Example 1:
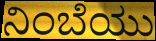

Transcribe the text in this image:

ನಿಂಬೆಯು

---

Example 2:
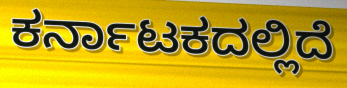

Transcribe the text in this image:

ಕರ್ನಾಟಕದಲ್ಲಿದೆ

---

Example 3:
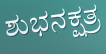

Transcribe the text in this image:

ಶುಭನಕ್ಷತ್ರ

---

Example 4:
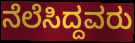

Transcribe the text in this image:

ನೆಲೆಸಿದ್ದವರು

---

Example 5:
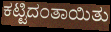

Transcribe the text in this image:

ಕಟ್ಟಿದಂತಾಯಿತು